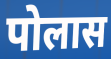
पोलास